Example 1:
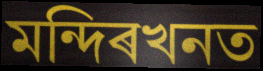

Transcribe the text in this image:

মন্দিৰখনত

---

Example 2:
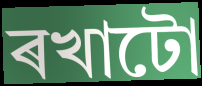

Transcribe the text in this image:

ৰখাটো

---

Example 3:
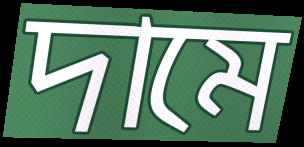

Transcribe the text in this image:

দামে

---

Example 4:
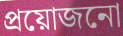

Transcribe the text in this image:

প্ৰয়োজনো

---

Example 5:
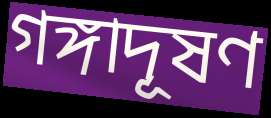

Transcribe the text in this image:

গঙ্গাদূষণ